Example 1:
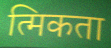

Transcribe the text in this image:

त्मिकता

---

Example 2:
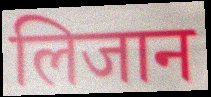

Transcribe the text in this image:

लिजान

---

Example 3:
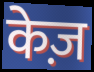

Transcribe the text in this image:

केज़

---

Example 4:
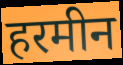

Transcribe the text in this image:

हरमीन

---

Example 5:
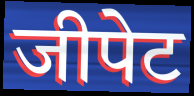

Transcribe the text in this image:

जीपेट